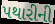
પથારીની